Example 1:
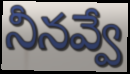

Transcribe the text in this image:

నీనవ్వే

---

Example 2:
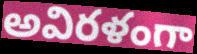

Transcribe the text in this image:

అవిరళంగా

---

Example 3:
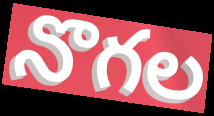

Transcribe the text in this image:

నొగల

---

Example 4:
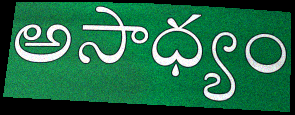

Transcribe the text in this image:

అసాధ్యం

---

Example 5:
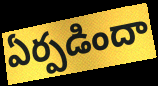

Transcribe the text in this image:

ఏర్పడిందా